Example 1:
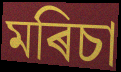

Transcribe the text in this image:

মৰিচা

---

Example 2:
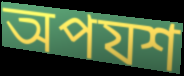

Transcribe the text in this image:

অপযশ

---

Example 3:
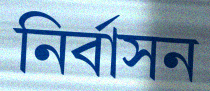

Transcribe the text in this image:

নিৰ্বাসন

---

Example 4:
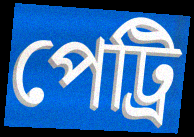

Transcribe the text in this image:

পেট্ৰি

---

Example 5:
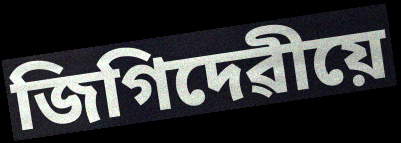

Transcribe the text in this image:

জিগিদেৱীয়ে